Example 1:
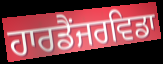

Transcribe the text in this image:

ਹਾਰਡੈਂਜਰਵਿਡਾ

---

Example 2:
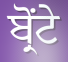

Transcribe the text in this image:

ਬ੍ਰੋਂਟੇ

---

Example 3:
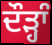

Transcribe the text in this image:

ਦੌੜ੍ਹਾੰ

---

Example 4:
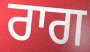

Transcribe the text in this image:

ਰਾਗ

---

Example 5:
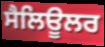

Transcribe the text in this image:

ਸੈਲਿਊਲਰ